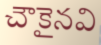
చౌకైనవి